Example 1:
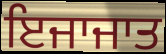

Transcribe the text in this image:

ਇਜਾਜਾਤ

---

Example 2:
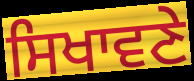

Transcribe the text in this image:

ਸਿਖਾਵਣੇ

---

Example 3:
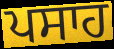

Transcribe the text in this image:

ਪਸਾਹ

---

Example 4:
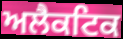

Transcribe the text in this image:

ਅਲੈਕਟਿਕ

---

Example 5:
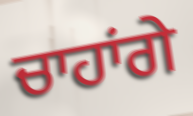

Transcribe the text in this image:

ਚਾਹਾਂਗੇ